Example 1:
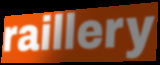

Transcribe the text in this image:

raillery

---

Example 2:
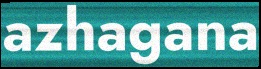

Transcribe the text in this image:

azhagana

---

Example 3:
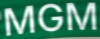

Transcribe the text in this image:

MGM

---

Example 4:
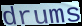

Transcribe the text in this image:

drums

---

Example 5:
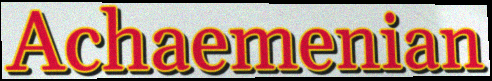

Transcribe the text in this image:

Achaemenian